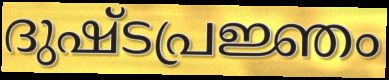
ദുഷ്ടപ്രജ്ഞം